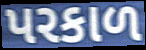
પરકાળ